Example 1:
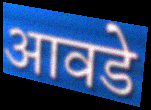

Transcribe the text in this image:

आवडे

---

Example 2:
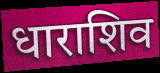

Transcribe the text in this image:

धाराशिव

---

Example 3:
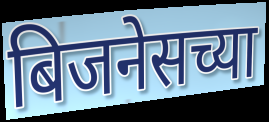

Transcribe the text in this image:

बिजनेसच्या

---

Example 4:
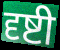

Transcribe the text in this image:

दृष्टी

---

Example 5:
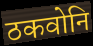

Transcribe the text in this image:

ठकवोनि